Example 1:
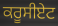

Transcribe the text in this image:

ਕਰੂਸੀਏਟ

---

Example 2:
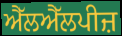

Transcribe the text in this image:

ਐੱਲਐੱਲਪੀਜ਼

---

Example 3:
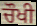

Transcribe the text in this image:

ਚੌਖੀ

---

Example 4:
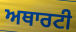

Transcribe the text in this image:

ਅਥਾਰਟੀ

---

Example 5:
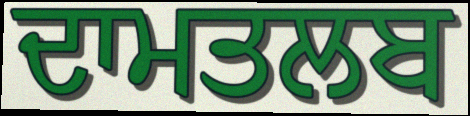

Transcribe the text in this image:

ਦਾਮਤਲਬ